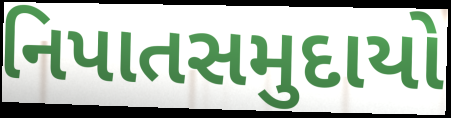
નિપાતસમુદાયો